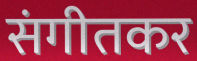
संगीतकर